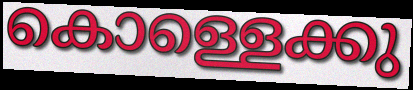
കൊള്ളെക്കു